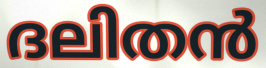
ദലിതൻ